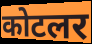
कोटलर